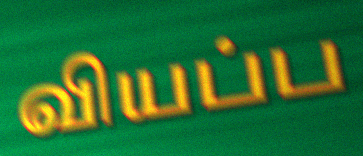
வியப்ப